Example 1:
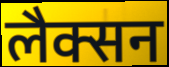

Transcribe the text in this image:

लैक्सन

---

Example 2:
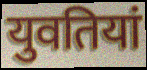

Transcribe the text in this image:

युवतियां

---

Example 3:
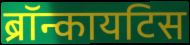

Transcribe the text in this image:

ब्रॉन्कायटिस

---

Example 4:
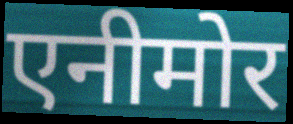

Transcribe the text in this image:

एनीमोर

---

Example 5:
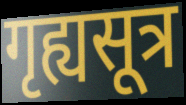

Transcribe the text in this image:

गृह्यसूत्र